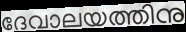
ദേവാലയത്തിനു